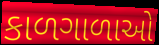
કાળગાળાઓ